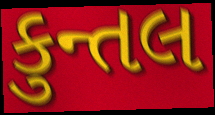
કુન્તલ